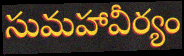
సుమహావీర్యం